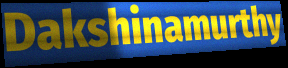
Dakshinamurthy